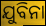
ଯୁବିନା